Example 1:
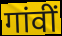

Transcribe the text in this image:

गांवीं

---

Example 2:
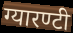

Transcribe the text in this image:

ग्यारण्टी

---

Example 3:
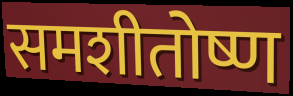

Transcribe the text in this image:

समशीतोष्ण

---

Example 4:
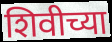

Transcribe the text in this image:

शिवीच्या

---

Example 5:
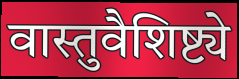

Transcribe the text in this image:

वास्तुवैशिष्ट्ये